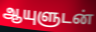
ஆயுளுடன்